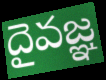
దైవజ్ఞ